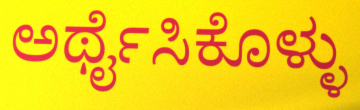
ಅರ್ಥೈಸಿಕೊಳ್ಳು